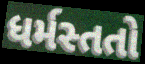
ધર્મસ્તતો